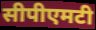
सीपीएमटी